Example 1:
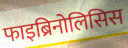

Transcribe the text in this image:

फाइब्रिनोलिसिस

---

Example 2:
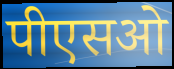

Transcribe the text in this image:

पीएसओ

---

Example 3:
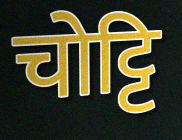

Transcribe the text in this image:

चोट्टि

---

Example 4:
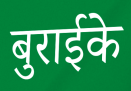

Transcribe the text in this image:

बुराईके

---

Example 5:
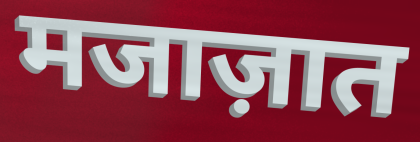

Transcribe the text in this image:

मजाज़ात